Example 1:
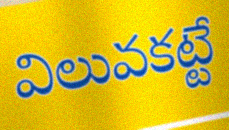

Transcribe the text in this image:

విలువకట్టే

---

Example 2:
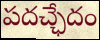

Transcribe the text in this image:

పదచ్ఛేదం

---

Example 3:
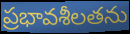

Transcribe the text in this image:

ప్రభావశీలతను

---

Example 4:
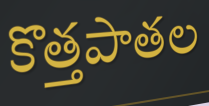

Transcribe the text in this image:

కొత్తపాతల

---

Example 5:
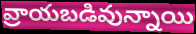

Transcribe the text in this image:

వ్రాయబడివున్నాయి